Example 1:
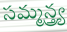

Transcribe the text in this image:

సమ్మన్త్ర్య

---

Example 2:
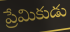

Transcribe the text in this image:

ప్రేమికుడు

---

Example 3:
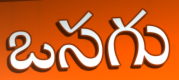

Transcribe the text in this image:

ఒసగు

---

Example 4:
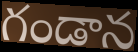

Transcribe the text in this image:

గండాన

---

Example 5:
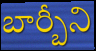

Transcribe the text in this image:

బార్బీని